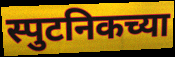
स्पुटनिकच्या